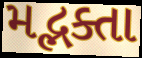
મદ્ભક્તા